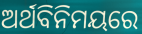
ଅର୍ଥବିନିମୟରେ